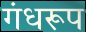
गंधरूप